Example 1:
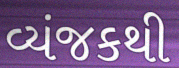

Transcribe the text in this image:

વ્યંજકથી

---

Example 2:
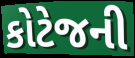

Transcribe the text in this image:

કોટેજની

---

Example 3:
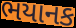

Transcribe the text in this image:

ભયાનક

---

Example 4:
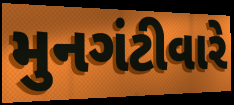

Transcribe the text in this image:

મુનગંટીવારે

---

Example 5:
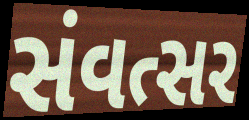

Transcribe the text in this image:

સંવત્સર